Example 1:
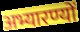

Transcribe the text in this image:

अभ्यारण्यों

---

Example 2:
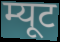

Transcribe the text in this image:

म्यूट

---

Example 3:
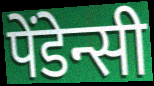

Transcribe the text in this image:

पेंडेन्सी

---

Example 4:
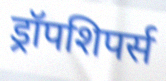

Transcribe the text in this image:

ड्रॉपशिपर्स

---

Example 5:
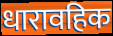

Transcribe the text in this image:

धारावहिक